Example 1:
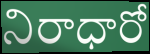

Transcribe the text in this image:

నిరాధారో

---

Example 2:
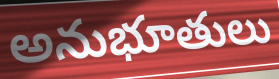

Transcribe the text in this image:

అనుభూతులు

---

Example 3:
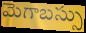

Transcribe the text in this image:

మెగాబస్సు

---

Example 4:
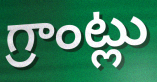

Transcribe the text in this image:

గ్రాంట్లు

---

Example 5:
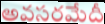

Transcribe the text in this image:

అవసరమేదీ